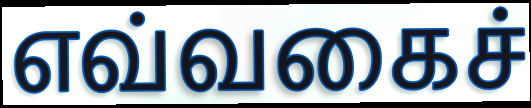
எவ்வகைச்